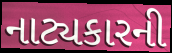
નાટ્યકારની